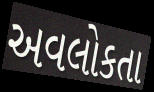
અવલોકતા